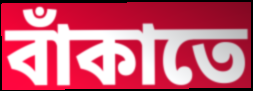
বাঁকাতে